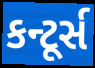
કન્ટૂર્સ